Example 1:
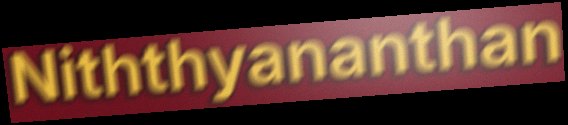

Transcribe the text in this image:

Niththyananthan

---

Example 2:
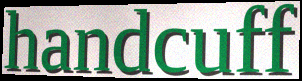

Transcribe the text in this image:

handcuff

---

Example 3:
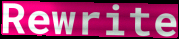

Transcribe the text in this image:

Rewrite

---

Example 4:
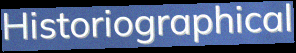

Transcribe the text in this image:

Historiographical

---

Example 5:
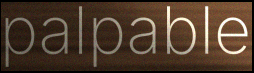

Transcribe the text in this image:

palpable